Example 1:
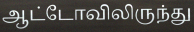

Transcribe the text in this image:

ஆட்டோவிலிருந்து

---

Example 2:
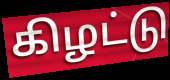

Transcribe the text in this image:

கிழட்டு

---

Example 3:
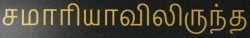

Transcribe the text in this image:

சமாரியாவிலிருந்த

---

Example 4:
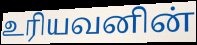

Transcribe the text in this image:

உரியவனின்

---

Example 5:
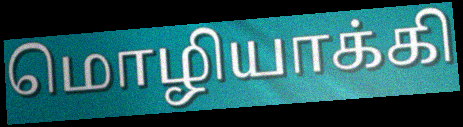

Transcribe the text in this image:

மொழியாக்கி